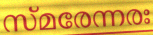
സ്മരേന്നരഃ